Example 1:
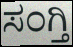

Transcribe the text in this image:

ಸಂಗ್ತಿ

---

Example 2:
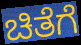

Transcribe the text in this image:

ಚಿತೆಗೆ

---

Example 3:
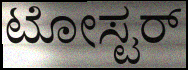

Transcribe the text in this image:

ಟೋಸ್ಟರ್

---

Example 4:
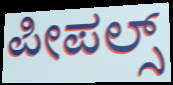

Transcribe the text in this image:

ಪೀಪಲ್ಸ್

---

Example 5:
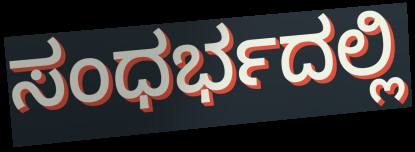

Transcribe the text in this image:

ಸಂಧರ್ಭದಲ್ಲಿ